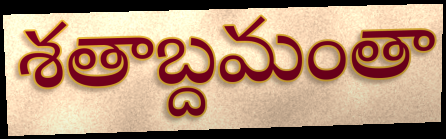
శతాబ్దమంతా